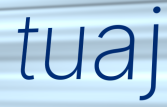
tuaj